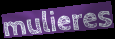
mulieres